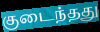
குடைந்தது